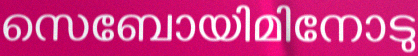
സെബോയിമിനോടു